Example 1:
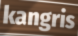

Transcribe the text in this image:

kangris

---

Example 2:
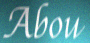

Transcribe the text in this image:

Abou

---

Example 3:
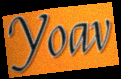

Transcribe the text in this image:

Yoav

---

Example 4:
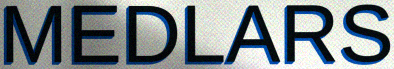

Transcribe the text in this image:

MEDLARS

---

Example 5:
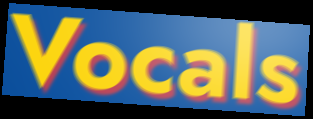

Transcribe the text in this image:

Vocals